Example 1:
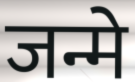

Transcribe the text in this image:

जन्मे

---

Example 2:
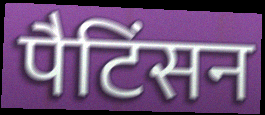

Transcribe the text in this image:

पैटिंसन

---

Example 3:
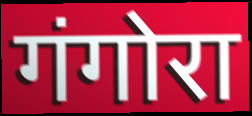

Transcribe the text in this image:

गंगोरा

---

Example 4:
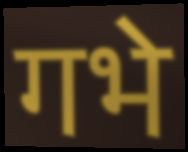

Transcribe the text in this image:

गभे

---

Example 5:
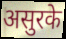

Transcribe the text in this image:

असुरके